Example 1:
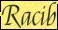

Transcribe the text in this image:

Racib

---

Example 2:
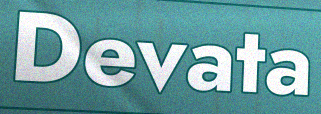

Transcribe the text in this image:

Devata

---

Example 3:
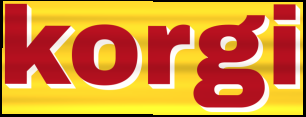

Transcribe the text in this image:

korgi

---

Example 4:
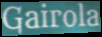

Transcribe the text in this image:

Gairola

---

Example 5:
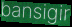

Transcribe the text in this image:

bansigir